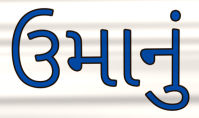
ઉમાનું